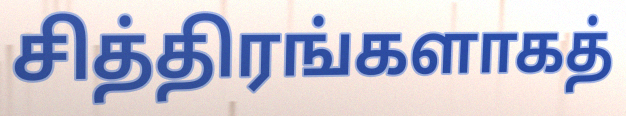
சித்திரங்களாகத்